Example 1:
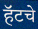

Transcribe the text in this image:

हॅटचे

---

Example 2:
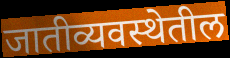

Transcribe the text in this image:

जातीव्यवस्थेतील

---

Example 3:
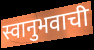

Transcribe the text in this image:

स्वानुभवाची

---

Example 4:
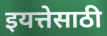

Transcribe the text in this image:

इयत्तेसाठी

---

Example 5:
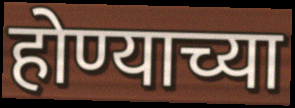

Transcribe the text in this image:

होण्‍याच्‍या